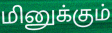
மினுக்கும்